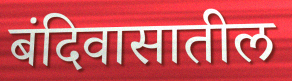
बंदिवासातील